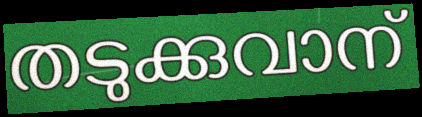
തടുക്കുവാന്